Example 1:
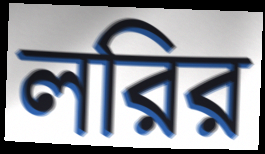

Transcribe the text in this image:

লরির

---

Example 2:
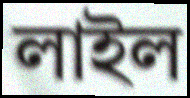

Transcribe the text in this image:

লাইল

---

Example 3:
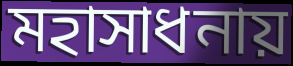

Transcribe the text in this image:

মহাসাধনায়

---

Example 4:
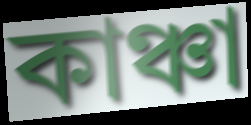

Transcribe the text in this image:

কাঞ্চা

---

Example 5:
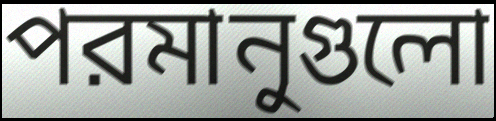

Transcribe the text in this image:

পরমানুগুলো